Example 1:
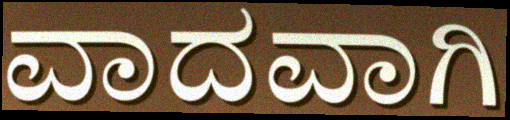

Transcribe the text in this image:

ವಾದವಾಗಿ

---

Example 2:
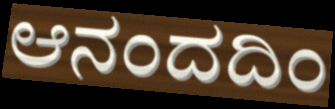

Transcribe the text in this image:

ಆನಂದದಿಂ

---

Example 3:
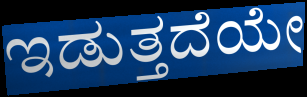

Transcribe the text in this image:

ಇಡುತ್ತದೆಯೇ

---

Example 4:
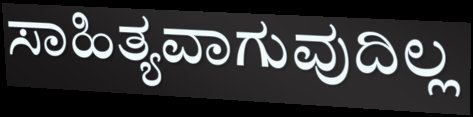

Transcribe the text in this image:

ಸಾಹಿತ್ಯವಾಗುವುದಿಲ್ಲ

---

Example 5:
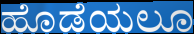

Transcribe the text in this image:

ಹೊಡೆಯಲೂ